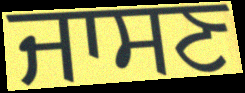
ਜਾਸਣ